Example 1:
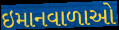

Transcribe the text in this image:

ઇમાનવાળાઓ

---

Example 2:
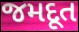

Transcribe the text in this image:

જમદૂત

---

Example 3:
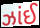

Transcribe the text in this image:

ઝાંઈ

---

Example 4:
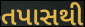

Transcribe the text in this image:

તપાસથી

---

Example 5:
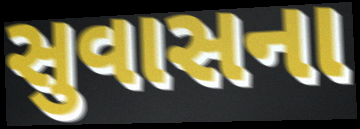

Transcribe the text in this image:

સુવાસના